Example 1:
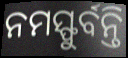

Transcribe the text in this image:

ନମସ୍ଫୁର୍ବନ୍ତି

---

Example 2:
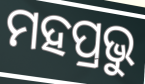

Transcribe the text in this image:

ମହପ୍ରଭୁ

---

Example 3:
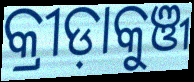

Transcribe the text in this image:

କ୍ରୀଡ଼ାକୁଞ୍ଜ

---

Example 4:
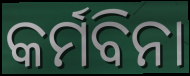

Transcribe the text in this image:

କର୍ମବିନା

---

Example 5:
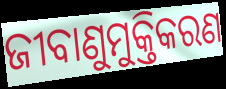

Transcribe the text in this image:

ଜୀବାଣୁମୁକ୍ତିକରଣ